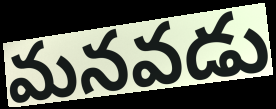
మనవడు